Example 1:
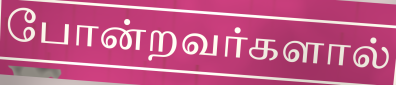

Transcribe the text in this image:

போன்றவர்களால்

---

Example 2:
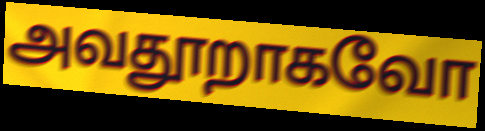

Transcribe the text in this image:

அவதூறாகவோ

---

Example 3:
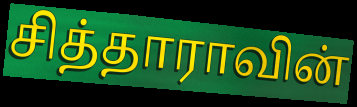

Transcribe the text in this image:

சித்தாராவின்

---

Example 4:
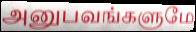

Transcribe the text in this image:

அனுபவங்களுமே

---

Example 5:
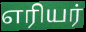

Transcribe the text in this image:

எரியர்